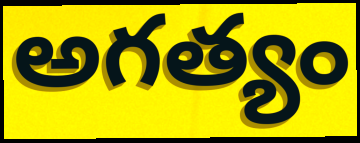
అగత్యం